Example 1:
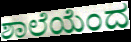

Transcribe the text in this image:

ಶಾಲೆಯೆಂದ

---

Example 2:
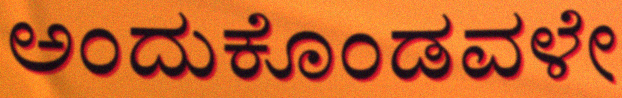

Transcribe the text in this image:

ಅಂದುಕೊಂಡವಳೇ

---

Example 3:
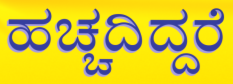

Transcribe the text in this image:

ಹಚ್ಚದಿದ್ದರೆ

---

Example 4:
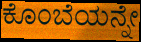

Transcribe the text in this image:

ಕೊಂಬೆಯನ್ನೇ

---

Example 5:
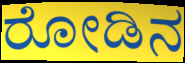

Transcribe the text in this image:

ರೋಡಿನ